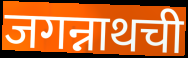
जगन्नाथची